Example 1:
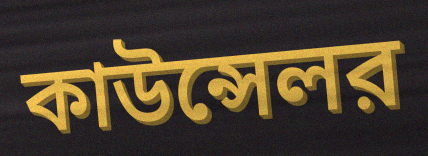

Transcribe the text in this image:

কাউন্সেলর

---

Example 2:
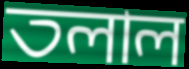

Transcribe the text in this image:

তলাল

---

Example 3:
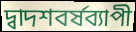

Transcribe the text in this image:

দ্বাদশবর্ষব্যাপী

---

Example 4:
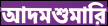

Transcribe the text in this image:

আদমশুমারি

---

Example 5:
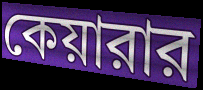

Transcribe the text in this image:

কেয়ারার